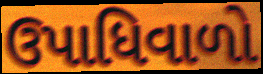
ઉપાધિવાળો